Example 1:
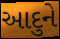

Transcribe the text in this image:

આદુને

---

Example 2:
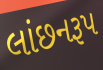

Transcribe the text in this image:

લાંછનરૂપ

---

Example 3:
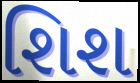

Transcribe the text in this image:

શિશ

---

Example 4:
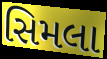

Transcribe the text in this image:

સિમલા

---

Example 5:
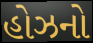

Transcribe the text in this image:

હોઝનો